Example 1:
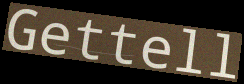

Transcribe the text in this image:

Gettell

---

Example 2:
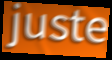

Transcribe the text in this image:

juste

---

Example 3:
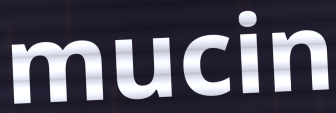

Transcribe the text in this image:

mucin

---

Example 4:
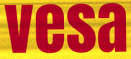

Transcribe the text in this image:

vesa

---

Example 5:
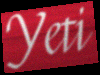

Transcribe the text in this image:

Yeti